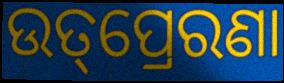
ଉତ୍‌ପ୍ରେରଣା